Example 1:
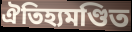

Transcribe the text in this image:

ঐতিহ্যমণ্ডিত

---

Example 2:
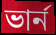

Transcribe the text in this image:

ভার্ন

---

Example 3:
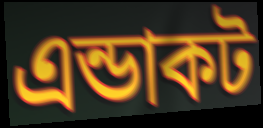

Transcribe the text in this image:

এন্ডাকট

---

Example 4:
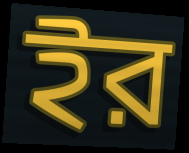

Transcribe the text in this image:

ইর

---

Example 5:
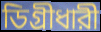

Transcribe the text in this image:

ডিগ্রীধারী